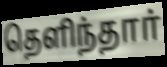
தெளிந்தார்